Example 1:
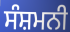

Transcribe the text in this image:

ਸੰਸ਼ਮਨੀ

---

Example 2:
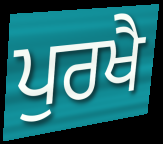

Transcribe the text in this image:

ਪੁਰਖੈ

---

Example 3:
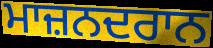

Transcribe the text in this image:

ਮਾਜ਼ਨਦਰਾਨ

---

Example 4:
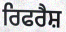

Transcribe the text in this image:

ਰਿਫਰੈਸ਼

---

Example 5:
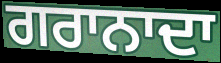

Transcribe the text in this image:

ਗਰਾਨਾਦਾ